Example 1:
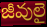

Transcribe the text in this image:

జీవులై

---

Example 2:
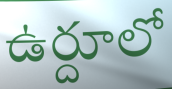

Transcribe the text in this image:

ఉర్దూలో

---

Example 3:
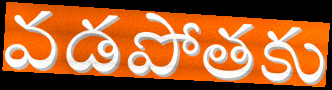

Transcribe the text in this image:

వడపోతకు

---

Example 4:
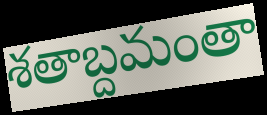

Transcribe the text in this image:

శతాబ్దమంతా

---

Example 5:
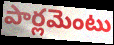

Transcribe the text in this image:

పార్లమెంటు